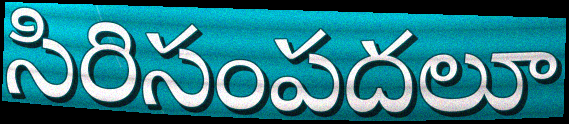
సిరిసంపదలూ